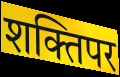
शक्तिपर